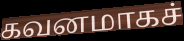
கவனமாகச்